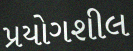
પ્રયોગશીલ